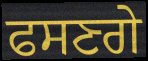
ਫਸਣਗੇ